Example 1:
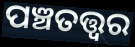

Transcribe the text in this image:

ପଞ୍ଚତତ୍ତ୍ୱର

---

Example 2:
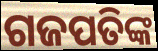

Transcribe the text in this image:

ଗଜପତିଙ୍କ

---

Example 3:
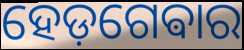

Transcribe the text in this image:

ହେଡ଼ଗେଵାର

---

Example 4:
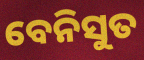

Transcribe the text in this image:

ବେନିସୁତ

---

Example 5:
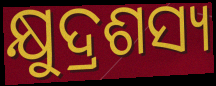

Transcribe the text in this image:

କ୍ଷୁଦ୍ରଶସ୍ୟ